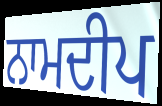
ਨਾਮਦੀਪ